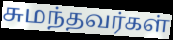
சுமந்தவர்கள்